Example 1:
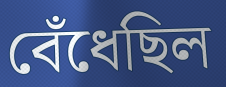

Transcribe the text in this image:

বেঁধেছিল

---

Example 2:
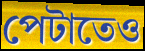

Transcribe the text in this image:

পেটাতেও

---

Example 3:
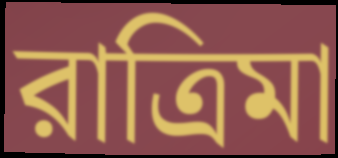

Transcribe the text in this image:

রাত্রিমা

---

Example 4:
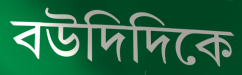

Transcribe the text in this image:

বউদিদিকে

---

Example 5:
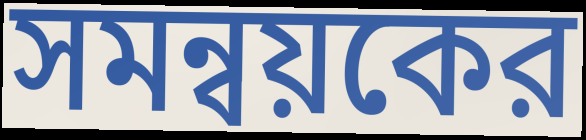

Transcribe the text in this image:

সমন্বয়কের